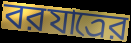
বরযাত্রের